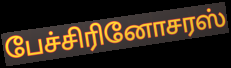
பேச்சிரினோசரஸ்